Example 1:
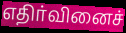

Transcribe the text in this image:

எதிர்வினைச்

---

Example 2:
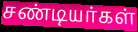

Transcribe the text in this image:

சண்டியர்கள்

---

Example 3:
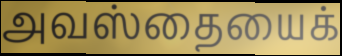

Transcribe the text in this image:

அவஸ்தையைக்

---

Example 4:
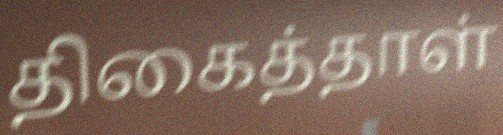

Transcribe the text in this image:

திகைத்தாள்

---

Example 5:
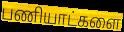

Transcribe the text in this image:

பணியாட்களை